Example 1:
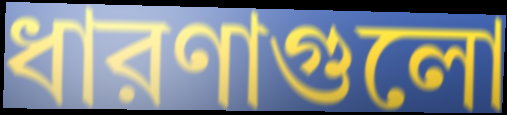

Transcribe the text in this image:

ধারণাগুলো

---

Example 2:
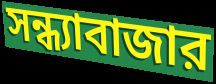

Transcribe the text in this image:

সন্ধ্যাবাজার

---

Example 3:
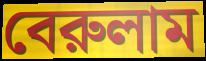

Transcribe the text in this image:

বেরুলাম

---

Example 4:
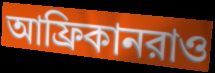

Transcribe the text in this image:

আফ্রিকানরাও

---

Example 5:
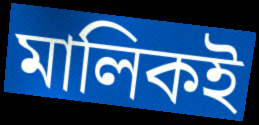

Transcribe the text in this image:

মালিকই